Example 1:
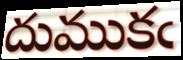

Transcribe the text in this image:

దుముకఁ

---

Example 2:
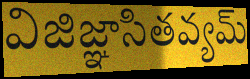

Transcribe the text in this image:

విజిజ్ఞాసితవ్యమ్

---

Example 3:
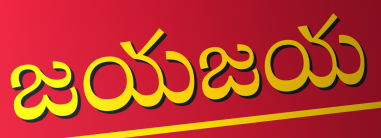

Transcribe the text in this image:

జయజయ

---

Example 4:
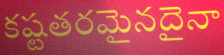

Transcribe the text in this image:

కష్టతరమైనదైనా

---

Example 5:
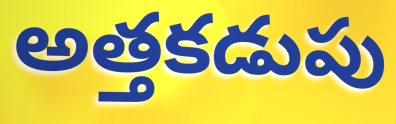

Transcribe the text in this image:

అత్తకడుపు